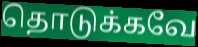
தொடுக்கவே